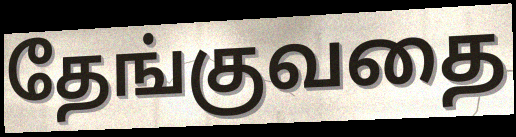
தேங்குவதை